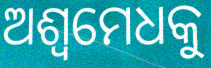
ଅଶ୍ୱମେଧକୁ